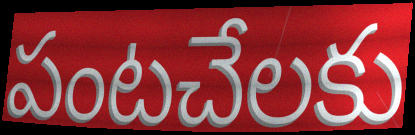
పంటచేలకు